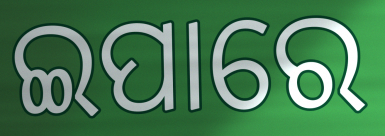
ଇପାରେ